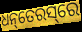
ଧନ୍‌ତେରସ୍‌ରେ